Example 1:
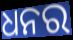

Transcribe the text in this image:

ଧନର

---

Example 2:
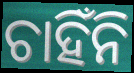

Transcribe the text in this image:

ଚାହିଁନି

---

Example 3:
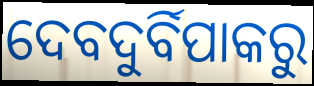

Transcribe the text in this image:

ଦେବଦୁର୍ବିପାକରୁ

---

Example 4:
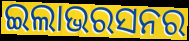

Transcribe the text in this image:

ଇଲାଭରସନର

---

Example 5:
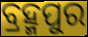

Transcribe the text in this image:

ବ୍ରହ୍ମପୁର